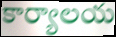
కార్యాలయ